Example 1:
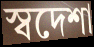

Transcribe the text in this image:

স্বদেশা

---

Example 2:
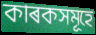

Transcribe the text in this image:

কাৰকসমূহে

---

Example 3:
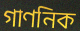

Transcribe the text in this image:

গাণনিক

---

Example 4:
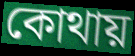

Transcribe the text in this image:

কোথায়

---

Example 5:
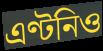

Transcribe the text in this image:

এণ্টনিও